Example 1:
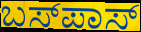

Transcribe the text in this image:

ಬಸ್‍ಪಾಸ್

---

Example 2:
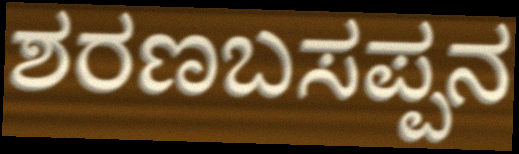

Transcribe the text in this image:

ಶರಣಬಸಪ್ಪನ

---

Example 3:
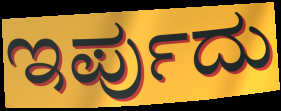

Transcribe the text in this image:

ಇರ್ಪುದು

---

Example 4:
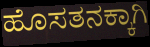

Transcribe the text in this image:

ಹೊಸತನಕ್ಕಾಗಿ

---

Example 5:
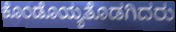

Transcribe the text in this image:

ಕೊಂಡೊಯ್ಯತೊಡಗಿದರು